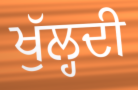
ਖੁੱਲ੍ਹਦੀ